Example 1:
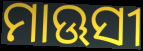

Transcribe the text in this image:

ମାଊସୀ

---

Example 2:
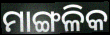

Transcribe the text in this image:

ମାଙ୍ଗଳିକ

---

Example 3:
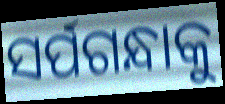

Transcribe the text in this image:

ସର୍ପଗନ୍ଧାକୁ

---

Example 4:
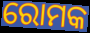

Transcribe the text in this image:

ରୋମକ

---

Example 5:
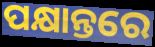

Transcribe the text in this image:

ପକ୍ଷାନ୍ତରେ